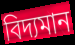
বিদ্যমান